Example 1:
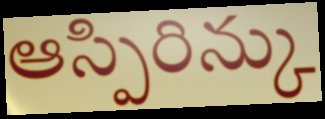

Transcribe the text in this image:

ఆస్పిరిన్కు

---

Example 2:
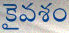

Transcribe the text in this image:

కైవశం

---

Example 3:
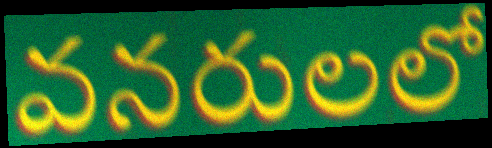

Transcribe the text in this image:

వనరులలో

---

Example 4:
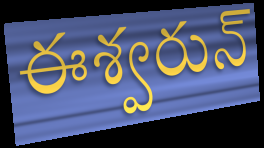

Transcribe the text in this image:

ఈశ్వరున్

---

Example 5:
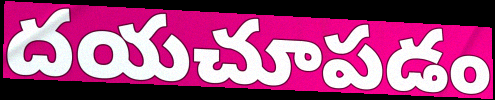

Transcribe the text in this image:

దయచూపడం